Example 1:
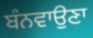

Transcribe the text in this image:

ਬੰਨਵਾਉਣਾ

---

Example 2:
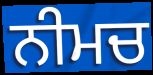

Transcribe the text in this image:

ਨੀਮਚ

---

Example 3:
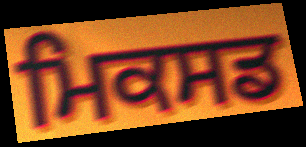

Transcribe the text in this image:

ਮਿਕਸਡ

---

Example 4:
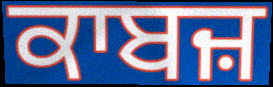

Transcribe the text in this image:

ਕਾਬਜ਼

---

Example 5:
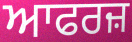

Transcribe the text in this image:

ਆਫਰਜ਼